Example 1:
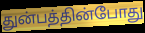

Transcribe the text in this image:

துன்பத்தின்போது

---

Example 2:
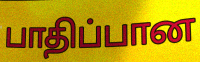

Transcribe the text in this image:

பாதிப்பான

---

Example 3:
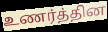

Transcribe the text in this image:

உணர்த்தின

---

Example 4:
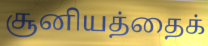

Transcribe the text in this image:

சூனியத்தைக்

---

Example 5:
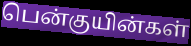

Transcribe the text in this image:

பென்குயின்கள்